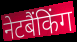
नेटबैंकिंग